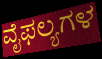
ವೈಫಲ್ಯಗಳ